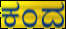
ಕಂದ